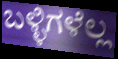
ಬಳ್ಳಿಗಳೆಲ್ಲ